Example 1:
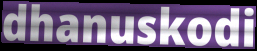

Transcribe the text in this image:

dhanuskodi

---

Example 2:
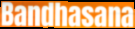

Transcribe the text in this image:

Bandhasana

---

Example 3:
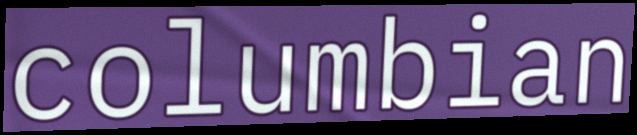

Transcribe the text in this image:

columbian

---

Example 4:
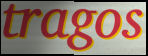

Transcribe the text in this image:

tragos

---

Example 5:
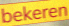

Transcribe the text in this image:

bekeren